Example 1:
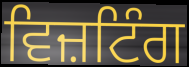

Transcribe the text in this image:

ਵਿਜ਼ਟਿੰਗ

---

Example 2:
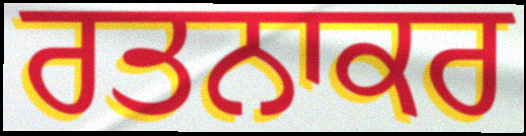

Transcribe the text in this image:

ਰਤਨਾਕਰ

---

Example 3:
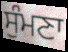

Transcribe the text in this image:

ਸੁੰਮਣਾ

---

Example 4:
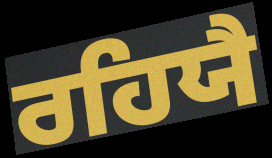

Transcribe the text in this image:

ਰਹਿਯੈ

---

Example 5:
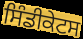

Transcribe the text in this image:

ਸਿੰਡੀਕੇਟਸ